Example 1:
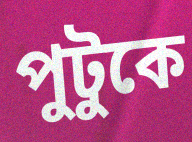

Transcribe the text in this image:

পুটুকে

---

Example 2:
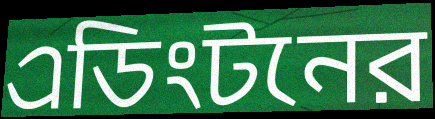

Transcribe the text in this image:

এডিংটনের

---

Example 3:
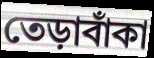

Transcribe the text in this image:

তেড়াবাঁকা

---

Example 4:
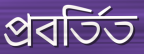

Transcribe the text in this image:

প্রবর্তিত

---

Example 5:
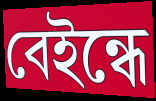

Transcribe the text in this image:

বেইন্ধে